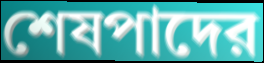
শেষপাদের